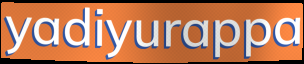
yadiyurappa